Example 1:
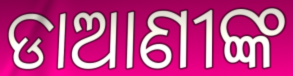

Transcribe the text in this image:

ଡାଆଣୀଙ୍କ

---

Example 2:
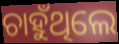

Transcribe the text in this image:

ଚାହୁଁଥିଲେ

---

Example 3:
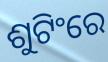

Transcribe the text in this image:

ଶୁଟିଂରେ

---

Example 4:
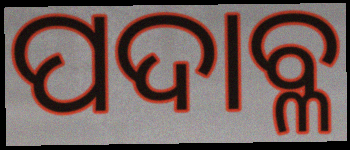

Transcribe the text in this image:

ପଦାବ୍ଳ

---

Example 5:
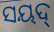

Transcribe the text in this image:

ସୟଦ୍